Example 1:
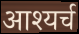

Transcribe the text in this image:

आश्यर्च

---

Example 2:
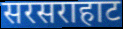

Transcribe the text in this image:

सरसराहाट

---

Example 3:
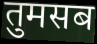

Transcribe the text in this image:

तुमसब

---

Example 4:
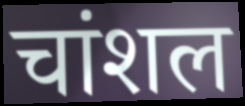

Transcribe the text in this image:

चांशल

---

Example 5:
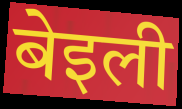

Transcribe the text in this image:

बेइली